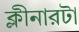
ক্লীনারটা